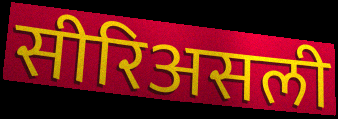
सीरिअसली